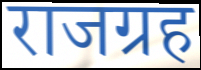
राजग्रह